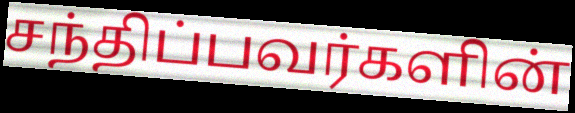
சந்திப்பவர்களின்